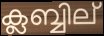
ക്ലബ്ബില്